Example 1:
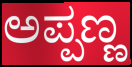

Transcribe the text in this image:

ಅಪ್ಪಣ್ಣ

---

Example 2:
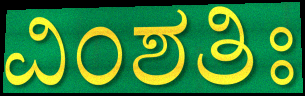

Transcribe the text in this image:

ವಿಂಶತಿಃ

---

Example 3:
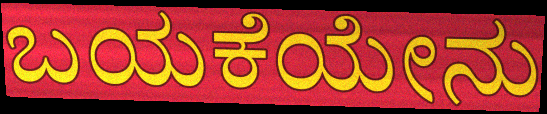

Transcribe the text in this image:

ಬಯಕೆಯೇನು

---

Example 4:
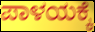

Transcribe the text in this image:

ಪಾಳಯಕ್ಕೆ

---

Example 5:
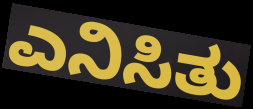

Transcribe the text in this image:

ಎನಿಸಿತು